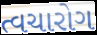
ત્વચારોગ